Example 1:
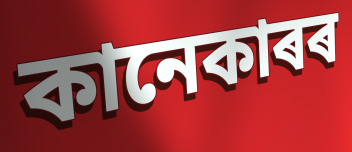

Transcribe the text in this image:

কানেকাৰৰ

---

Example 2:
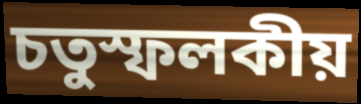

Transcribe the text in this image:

চতুস্ফলকীয়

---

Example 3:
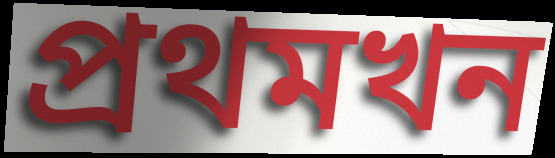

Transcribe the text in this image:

প্ৰথমখন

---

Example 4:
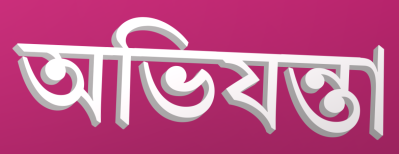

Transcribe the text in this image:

অভিযন্তা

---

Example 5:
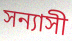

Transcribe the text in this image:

সন্যাসী